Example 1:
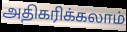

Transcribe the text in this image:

அதிகரிக்கலாம்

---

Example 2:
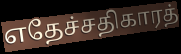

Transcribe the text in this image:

எதேச்சதிகாரத்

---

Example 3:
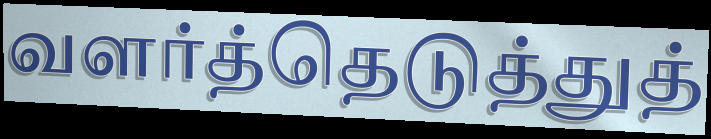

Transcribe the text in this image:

வளர்த்தெடுத்துத்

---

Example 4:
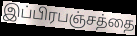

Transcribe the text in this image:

இப்பிரபஞ்சத்தை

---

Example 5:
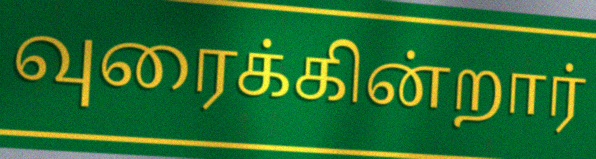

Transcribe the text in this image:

வுரைக்கின்றார்